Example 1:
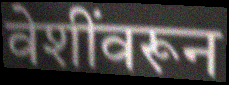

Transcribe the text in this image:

वेशींवरून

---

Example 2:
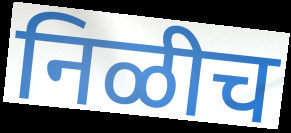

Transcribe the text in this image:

निळीच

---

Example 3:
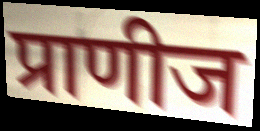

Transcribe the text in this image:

प्राणीज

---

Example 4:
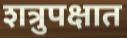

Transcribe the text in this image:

शत्रुपक्षात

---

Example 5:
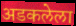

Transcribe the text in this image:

अडकलेला